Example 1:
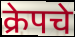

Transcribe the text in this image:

क्रेपचे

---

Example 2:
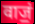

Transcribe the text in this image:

वाजं॒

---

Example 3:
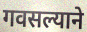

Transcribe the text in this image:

गवसल्याने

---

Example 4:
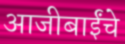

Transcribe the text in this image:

आजीबाईंचे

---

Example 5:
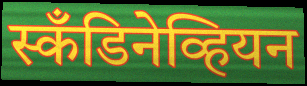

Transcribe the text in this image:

स्कँडिनेव्हियन